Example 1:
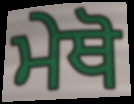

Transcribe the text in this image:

ਮੇਥੋ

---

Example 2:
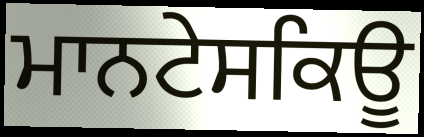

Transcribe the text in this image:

ਮਾਨਟੇਸਕਿਊ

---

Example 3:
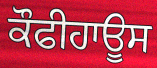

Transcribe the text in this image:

ਕੌਫੀਹਾਊਸ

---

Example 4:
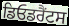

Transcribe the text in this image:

ਡਿਓਡਰੈਂਟਸ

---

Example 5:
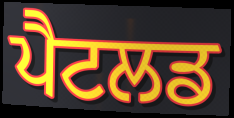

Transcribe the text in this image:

ਪੈਟਲਡ